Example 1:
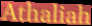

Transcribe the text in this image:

Athaliah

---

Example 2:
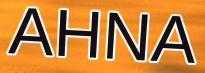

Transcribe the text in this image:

AHNA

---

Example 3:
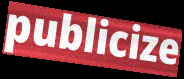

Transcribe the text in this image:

publicize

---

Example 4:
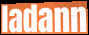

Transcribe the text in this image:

ladann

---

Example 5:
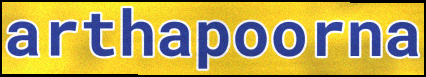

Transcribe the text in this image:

arthapoorna